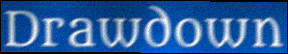
Drawdown